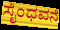
ಸೈಂಧವನೆ